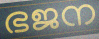
ഭജന